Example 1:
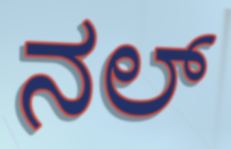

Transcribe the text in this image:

ನಲ್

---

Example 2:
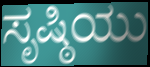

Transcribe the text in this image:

ಸೃಷ್ಠಿಯು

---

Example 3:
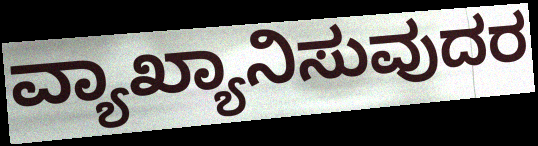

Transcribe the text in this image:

ವ್ಯಾಖ್ಯಾನಿಸುವುದರ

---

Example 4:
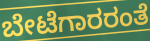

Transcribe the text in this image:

ಬೇಟೆಗಾರರಂತೆ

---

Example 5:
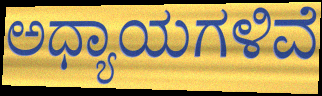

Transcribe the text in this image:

ಅಧ್ಯಾಯಗಳಿವೆ